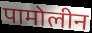
पामोलीन